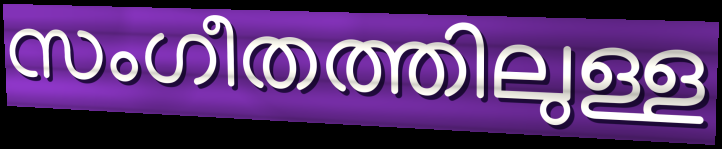
സംഗീതത്തിലുള്ള